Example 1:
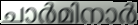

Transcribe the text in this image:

ചാർമിനാർ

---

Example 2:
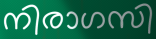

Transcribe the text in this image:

നിരാഗസി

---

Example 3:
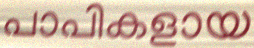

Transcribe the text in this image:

പാപികളായ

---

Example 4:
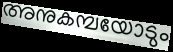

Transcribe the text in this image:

അനുകമ്പയോടും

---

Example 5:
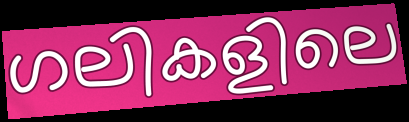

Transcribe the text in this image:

ഗലികളിലെ